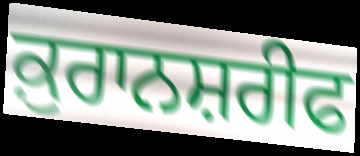
ਕ਼ੁਰਾਨਸ਼ਰੀਫ